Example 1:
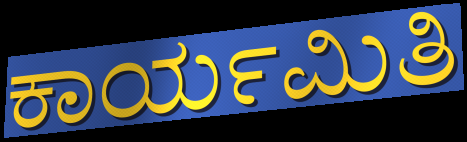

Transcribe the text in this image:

ಕಾರ್ಯಮಿತಿ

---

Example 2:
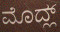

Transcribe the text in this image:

ಮೊದ್ಲ್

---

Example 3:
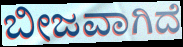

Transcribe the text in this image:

ಬೀಜವಾಗಿದೆ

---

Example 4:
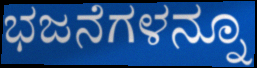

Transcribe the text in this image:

ಭಜನೆಗಳನ್ನೂ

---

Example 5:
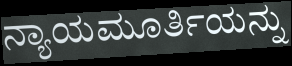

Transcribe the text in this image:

ನ್ಯಾಯಮೂರ್ತಿಯನ್ನು